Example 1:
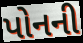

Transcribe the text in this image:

પોનની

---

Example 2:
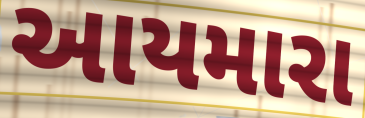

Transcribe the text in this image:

આયમારા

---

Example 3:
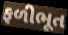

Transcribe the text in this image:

ફળીભૂત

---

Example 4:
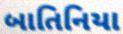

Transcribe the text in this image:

બાતિનિયા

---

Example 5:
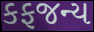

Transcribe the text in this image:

કફજન્ય